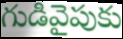
గుడివైపుకు